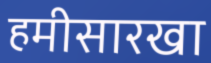
हमीसारखा